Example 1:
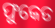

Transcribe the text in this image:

ଫୁକେତ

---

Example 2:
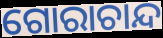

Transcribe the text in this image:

ଗୋରାଚାନ୍ଦ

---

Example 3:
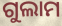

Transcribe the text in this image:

ଗୁଲାମ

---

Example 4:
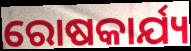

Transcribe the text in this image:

ରୋଷକାର୍ଯ୍ୟ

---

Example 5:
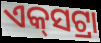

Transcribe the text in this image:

ଏକ୍‍ସଟ୍ରା